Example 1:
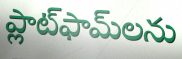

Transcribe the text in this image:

ప్లాట్‌ఫామ్‌లను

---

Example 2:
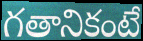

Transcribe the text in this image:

గతానికంటే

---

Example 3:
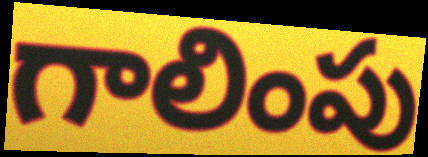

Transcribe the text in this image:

గాలింపు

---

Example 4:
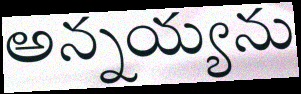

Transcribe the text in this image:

అన్నయ్యను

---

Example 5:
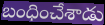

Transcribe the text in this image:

బంధించేశాడు